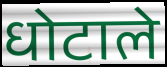
धोटाले